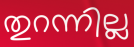
തുറന്നില്ല